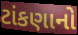
ટાંકણાનો